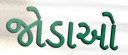
જોડાઓ